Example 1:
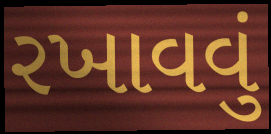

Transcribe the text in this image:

રખાવવું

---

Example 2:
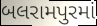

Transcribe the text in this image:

બલરામપુરમાં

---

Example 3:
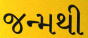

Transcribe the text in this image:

જન્મથી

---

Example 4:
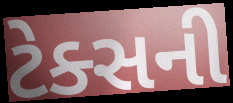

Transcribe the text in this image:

ટેક્સની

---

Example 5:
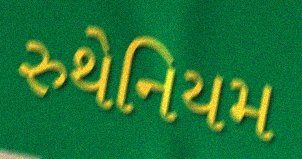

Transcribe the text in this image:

રુથેનિયમ